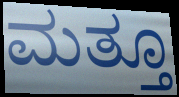
ಮತ್ತೂ